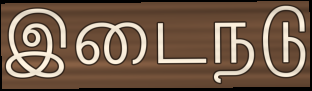
இடைநடு